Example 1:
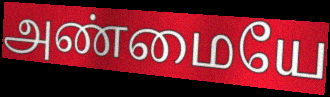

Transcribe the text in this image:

அண்மையே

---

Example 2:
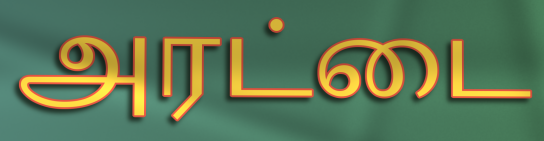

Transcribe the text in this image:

அரட்டை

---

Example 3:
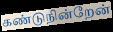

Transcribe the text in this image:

கண்டுநின்றேன்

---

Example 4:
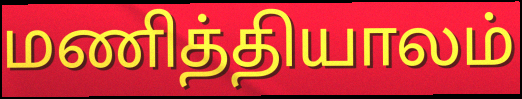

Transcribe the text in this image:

மணித்தியாலம்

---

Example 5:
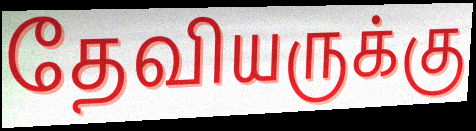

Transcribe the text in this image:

தேவியருக்கு